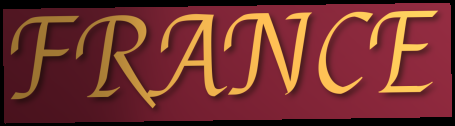
FRANCE